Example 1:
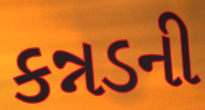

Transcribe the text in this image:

કન્નડની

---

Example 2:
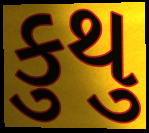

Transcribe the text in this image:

કુથુ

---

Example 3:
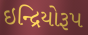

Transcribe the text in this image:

ઇન્દ્રિયોરૂપ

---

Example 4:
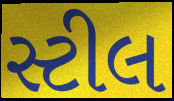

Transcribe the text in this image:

સ્ટીલ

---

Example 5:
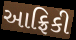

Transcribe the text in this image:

આફ્રિકી